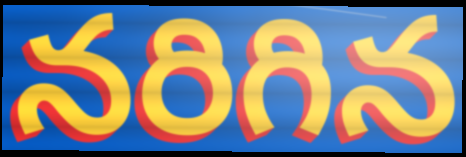
నరిగిన